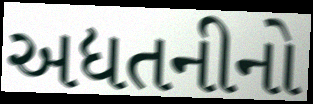
અદ્યતનીનો